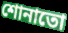
শোনাতো